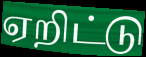
ஏறிட்டு